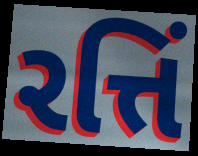
રત્તિં